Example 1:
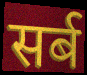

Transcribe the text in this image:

सर्ब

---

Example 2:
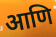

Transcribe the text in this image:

आणि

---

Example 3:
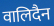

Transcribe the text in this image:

वालिदैन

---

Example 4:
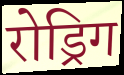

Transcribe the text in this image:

रोड्रिग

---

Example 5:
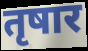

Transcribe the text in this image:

तृषार